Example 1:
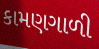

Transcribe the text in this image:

કામણગાળી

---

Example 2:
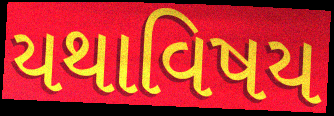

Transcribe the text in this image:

યથાવિષય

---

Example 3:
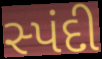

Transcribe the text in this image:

સ્પંદી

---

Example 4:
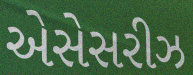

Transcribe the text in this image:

એસેસરીઝ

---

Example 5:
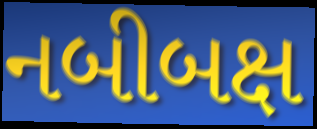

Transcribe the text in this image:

નબીબક્ષ